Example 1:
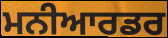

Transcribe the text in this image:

ਮਨੀਆਰਡਰ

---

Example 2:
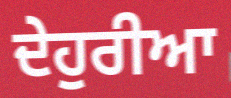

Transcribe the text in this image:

ਦੇਹੁਰੀਆ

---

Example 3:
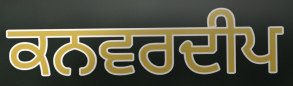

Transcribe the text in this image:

ਕਨਵਰਦੀਪ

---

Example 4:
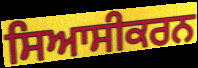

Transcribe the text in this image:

ਸਿਆਸੀਕਰਨ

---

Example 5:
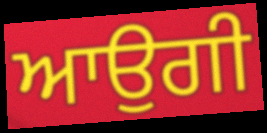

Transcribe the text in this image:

ਆਉਗੀ